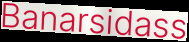
Banarsidass